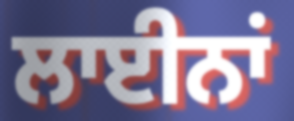
ਲਾਈਨਾਂ